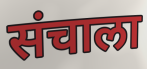
संचाला